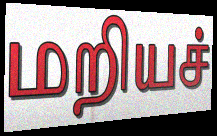
மறியச்